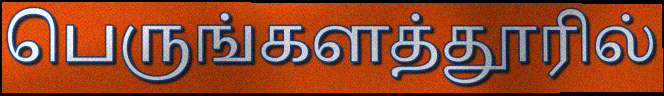
பெருங்களத்தூரில்